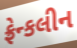
ફ્રેન્કલીન